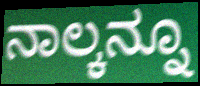
ನಾಲ್ಕನ್ನೂ